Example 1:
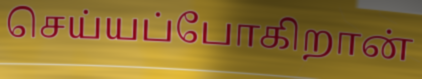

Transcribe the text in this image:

செய்யப்போகிறான்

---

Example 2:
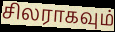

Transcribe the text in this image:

சிலராகவும்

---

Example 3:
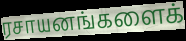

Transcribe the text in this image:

ரசாயனங்களைக்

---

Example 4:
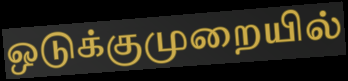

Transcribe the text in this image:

ஒடுக்குமுறையில்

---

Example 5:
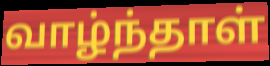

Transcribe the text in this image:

வாழ்ந்தாள்